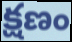
క్షణం